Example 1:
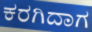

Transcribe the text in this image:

ಕರಗಿದಾಗ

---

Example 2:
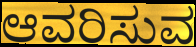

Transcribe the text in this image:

ಆವರಿಸುವ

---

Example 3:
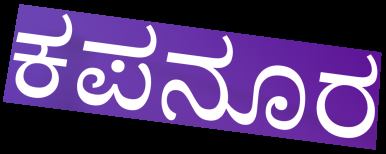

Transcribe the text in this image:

ಕಪನೂರ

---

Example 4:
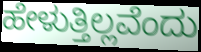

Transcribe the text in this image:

ಹೇಳುತ್ತಿಲ್ಲವೆಂದು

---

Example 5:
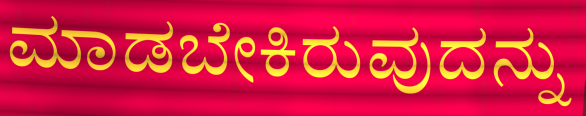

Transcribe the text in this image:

ಮಾಡಬೇಕಿರುವುದನ್ನು